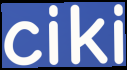
ciki